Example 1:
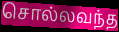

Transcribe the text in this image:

சொல்லவந்த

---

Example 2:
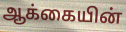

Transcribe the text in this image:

ஆக்கையின்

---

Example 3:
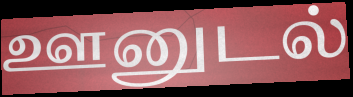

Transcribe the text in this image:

ஊனுடல்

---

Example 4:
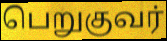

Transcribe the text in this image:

பெறுகுவர்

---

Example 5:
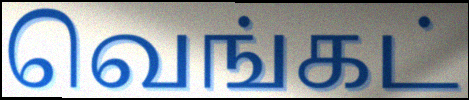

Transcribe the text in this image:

வெங்கட்